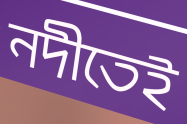
নদীতেই